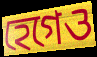
হেগেও